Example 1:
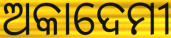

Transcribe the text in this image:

ଅକାଦେମୀ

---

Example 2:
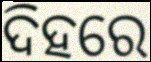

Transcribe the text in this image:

ଦିହରେ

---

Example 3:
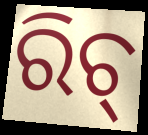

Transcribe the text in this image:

ରିଚ୍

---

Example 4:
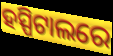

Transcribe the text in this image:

ହସ୍ପିଟାଲରେ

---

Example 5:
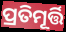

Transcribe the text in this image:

ପ୍ରତିମୂର୍ତ୍ତି